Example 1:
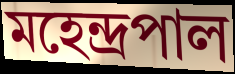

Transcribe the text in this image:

মহেন্দ্রপাল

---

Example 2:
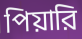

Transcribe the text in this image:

পিয়ারি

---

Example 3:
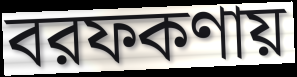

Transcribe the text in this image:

বরফকণায়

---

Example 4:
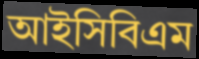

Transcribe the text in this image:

আইসিবিএম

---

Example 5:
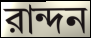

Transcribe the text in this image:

রান্দন